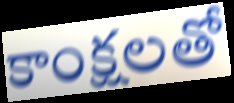
కాంక్షలతో